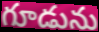
గూడును